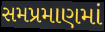
સમપ્રમાણમાં